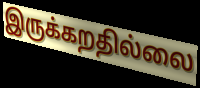
இருக்கறதில்லை